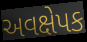
અવક્ષેપક